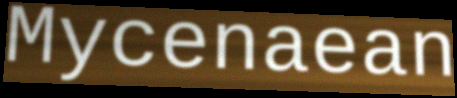
Mycenaean